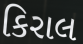
કિરાલ